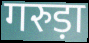
गरुड़ा